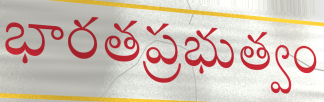
భారతప్రభుత్వం